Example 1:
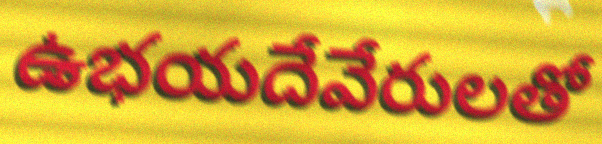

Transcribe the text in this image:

ఉభయదేవేరులతో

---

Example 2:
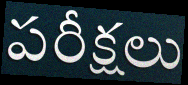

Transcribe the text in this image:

పరీక్షలు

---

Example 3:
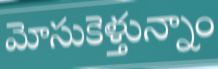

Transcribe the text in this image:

మోసుకెళ్తున్నాం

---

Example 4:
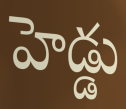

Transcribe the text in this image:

హెడ్డు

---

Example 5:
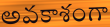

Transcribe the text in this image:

అవకాశంగా